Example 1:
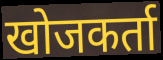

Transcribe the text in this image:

खोजकर्ता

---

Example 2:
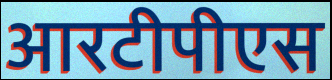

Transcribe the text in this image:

आरटीपीएस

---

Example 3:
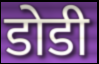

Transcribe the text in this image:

डोडी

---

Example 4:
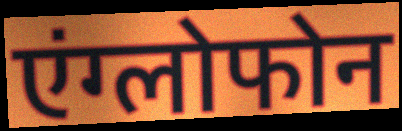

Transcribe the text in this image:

एंग्लोफोन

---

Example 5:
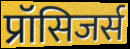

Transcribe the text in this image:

प्रॉसिजर्स